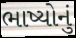
ભાષ્યોનું